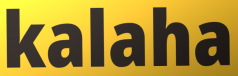
kalaha